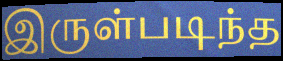
இருள்படிந்த